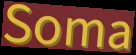
Soma